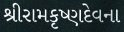
શ્રીરામકૃષ્ણદેવના